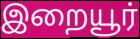
இறையூர்